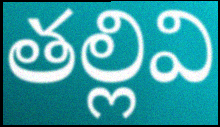
తల్లివి